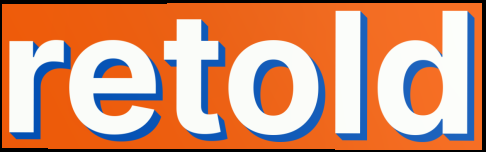
retold